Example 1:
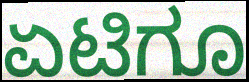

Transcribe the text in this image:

ಏಟಿಗೂ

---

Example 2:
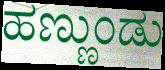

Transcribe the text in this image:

ಹಣ್ಣುಂಡು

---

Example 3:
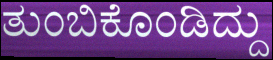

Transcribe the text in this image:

ತುಂಬಿಕೊಂಡಿದ್ದು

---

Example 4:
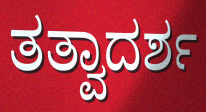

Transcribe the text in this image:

ತತ್ವಾದರ್ಶ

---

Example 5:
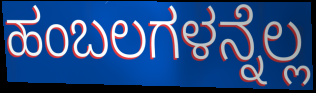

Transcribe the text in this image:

ಹಂಬಲಗಳನ್ನೆಲ್ಲ